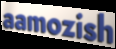
aamozish